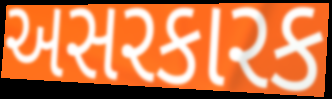
અસરકારક